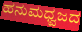
ಹನುಮಧ್ವಜದ